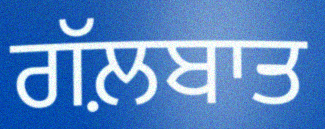
ਗੱਲ਼ਬਾਤ